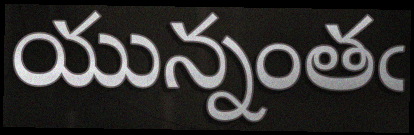
యున్నంతఁ